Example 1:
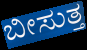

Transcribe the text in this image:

ಬೀಸುತ್ತ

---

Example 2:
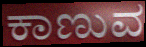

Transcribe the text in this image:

ಕಾಣುವ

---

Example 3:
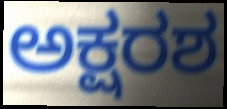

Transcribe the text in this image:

ಅಕ್ಷರಶ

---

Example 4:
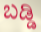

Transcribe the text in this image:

ಬಡ್ಡಿ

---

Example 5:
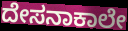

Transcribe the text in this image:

ದೇಸನಾಕಾಲೇ